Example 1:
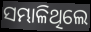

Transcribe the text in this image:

ସମ୍ଭାଳିଥିଲେ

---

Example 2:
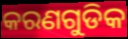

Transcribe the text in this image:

କରଣଗୁଡିକ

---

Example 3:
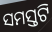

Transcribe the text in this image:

ସମସ୍ତଟି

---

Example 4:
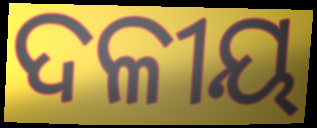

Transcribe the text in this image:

ଦଳୀୟ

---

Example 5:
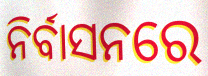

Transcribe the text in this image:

ନିର୍ବାସନରେ